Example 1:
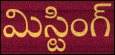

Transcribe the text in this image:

మిస్టింగ్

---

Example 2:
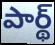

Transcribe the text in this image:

పార్థ్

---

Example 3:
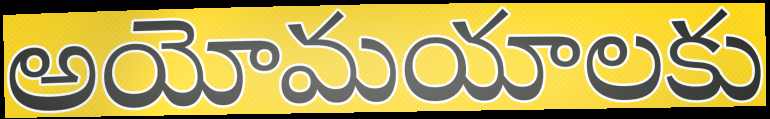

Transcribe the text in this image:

అయోమయాలకు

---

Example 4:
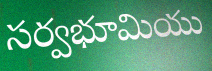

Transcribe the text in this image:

సర్వభూమియు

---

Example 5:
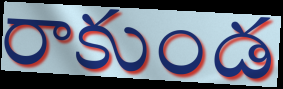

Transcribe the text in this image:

రాకుండ